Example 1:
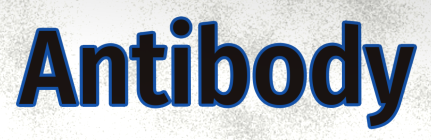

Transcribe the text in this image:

Antibody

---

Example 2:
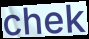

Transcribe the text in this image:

chek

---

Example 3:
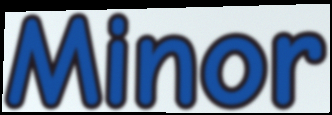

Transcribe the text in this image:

Minor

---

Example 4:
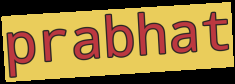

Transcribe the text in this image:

prabhat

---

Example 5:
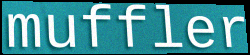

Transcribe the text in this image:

muffler